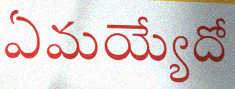
ఏమయ్యేదో